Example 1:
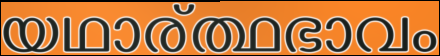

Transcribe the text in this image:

യഥാര്ത്ഥഭാവം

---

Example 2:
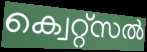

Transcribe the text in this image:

ക്വെറ്റ്സൽ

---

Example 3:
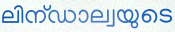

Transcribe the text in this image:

ലിന്ഡാല്വയുടെ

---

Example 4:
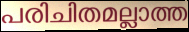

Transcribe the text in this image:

പരിചിതമല്ലാത്ത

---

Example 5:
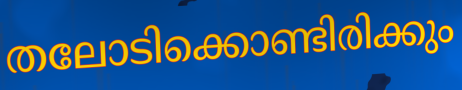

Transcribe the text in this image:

തലോടിക്കൊണ്ടിരിക്കും